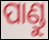
ପାଣ୍ଡୁ